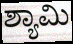
ಶ್ಯಾಮಿ